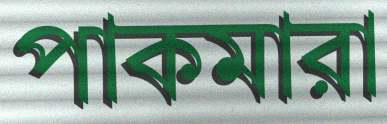
পাকমারা